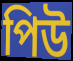
পিউ